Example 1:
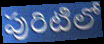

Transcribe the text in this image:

పురిటిలో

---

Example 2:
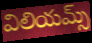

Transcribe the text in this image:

విలియమ్స్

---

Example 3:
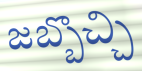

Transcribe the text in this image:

జబ్బొచ్చి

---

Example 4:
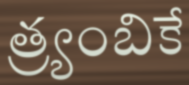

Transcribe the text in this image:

త్ర్యంబికే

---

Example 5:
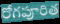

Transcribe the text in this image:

రోగపూరిత